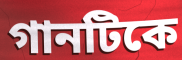
গানটিকে